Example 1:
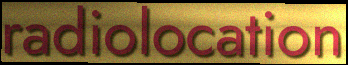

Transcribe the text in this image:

radiolocation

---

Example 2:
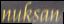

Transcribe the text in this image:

nuksan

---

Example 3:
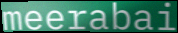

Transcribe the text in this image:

meerabai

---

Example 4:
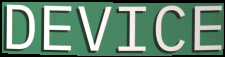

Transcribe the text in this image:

DEVICE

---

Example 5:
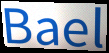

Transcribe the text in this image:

Bael